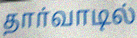
தார்வாடில்